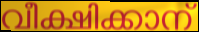
വീക്ഷിക്കാന്